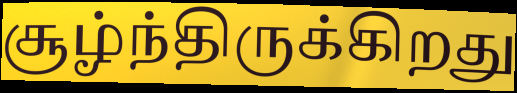
சூழ்ந்திருக்கிறது